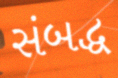
સંબદ્ધ